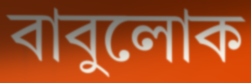
বাবুলোক